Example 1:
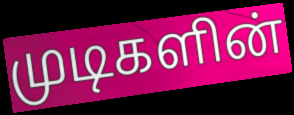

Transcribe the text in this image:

முடிகளின்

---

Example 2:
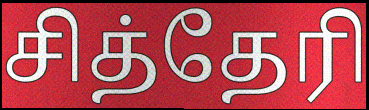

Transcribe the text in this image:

சித்தேரி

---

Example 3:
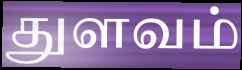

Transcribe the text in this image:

துளவம்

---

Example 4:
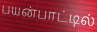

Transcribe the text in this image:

பயன்பாட்டில்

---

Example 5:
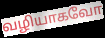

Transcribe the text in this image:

வழியாகவோ